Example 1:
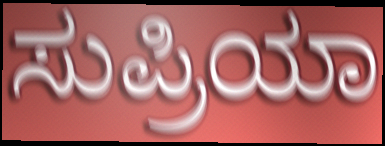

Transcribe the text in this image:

ಸುಪ್ರಿಯಾ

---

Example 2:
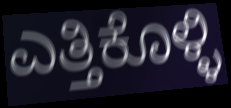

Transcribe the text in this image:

ಎತ್ತಿಕೊಳ್ಳಿ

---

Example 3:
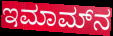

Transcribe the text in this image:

ಇಮಾಮ್‍ನ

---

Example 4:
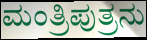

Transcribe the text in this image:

ಮಂತ್ರಿಪುತ್ರನು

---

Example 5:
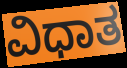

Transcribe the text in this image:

ವಿಧಾತ